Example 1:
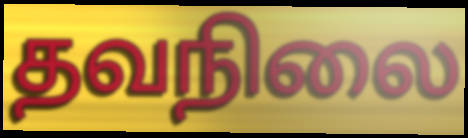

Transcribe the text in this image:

தவநிலை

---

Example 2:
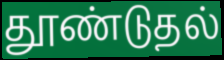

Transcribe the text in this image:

தூண்டுதல்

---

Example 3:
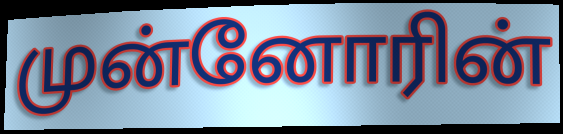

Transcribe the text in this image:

முன்னோரின்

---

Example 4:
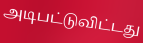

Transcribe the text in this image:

அடிபட்டுவிட்டது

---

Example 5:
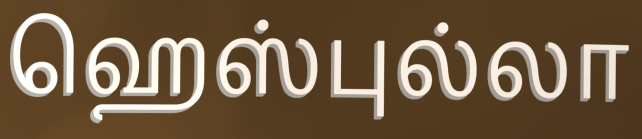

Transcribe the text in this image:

ஹெஸ்புல்லா